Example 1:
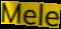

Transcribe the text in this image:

Mele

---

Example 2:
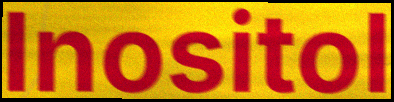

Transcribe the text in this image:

Inositol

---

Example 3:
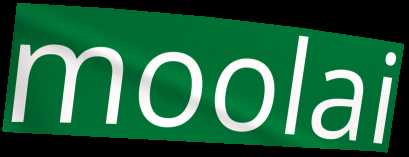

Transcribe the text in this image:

moolai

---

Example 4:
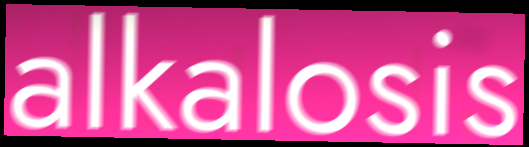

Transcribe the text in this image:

alkalosis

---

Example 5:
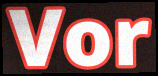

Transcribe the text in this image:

Vor